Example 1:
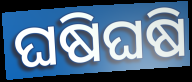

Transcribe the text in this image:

ଘଷିଘଷି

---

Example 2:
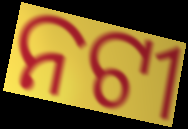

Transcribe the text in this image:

ନଟୀ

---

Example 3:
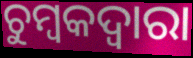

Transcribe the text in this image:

ଚୁମ୍ବକଦ୍ବାରା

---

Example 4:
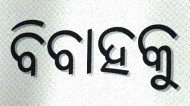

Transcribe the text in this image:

ବିବାହକୁ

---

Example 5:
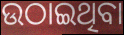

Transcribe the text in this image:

ଉଠାଇଥିବା